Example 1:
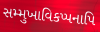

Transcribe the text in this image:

સમ્મુખાવિકપ્પનાપિ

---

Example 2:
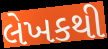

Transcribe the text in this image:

લેખકથી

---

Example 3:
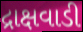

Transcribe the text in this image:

દ્રાક્ષવાડી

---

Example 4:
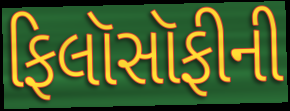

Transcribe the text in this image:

ફિલૉસૉફીની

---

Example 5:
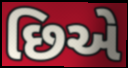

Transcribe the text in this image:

છિએ